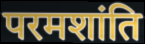
परमशांति